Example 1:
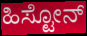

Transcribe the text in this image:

ಹಿಸ್ಟೋನ್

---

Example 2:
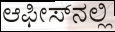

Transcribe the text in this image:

ಆಫೀಸ್‌ನಲ್ಲಿ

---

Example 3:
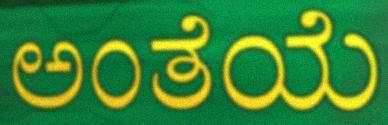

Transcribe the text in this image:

ಅಂತೆಯೆ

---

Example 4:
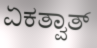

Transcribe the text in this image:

ಏಕತ್ವಾತ್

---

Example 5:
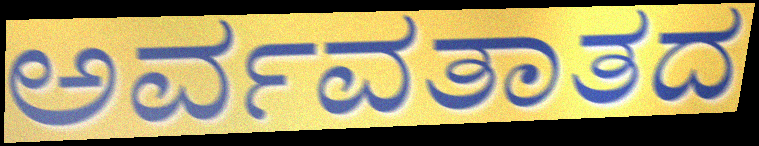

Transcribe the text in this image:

ಅರ್ವವತಾತದ